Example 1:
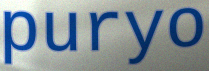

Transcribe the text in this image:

puryo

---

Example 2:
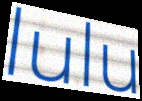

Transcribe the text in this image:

lulu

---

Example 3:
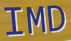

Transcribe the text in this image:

IMD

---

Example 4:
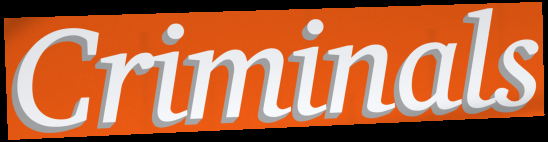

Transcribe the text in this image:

Criminals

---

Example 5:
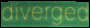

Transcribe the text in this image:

diverged